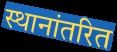
स्थानांतरित